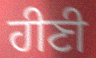
ਹੀਣੀ